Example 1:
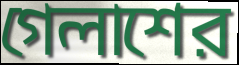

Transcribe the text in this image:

গেলাশের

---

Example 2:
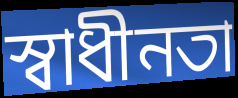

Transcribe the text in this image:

স্বাধীনতা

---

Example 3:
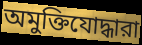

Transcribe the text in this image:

অমুক্তিযোদ্ধারা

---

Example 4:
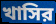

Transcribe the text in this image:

খাসির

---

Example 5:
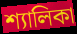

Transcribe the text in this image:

শ্যালিকা